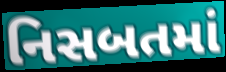
નિસબતમાં